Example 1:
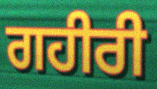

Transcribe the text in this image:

ਗਹੀਰੀ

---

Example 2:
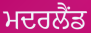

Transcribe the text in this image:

ਮਦਰਲੈਂਡ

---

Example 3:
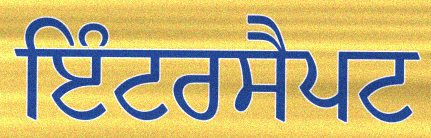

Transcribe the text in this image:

ਇੰਟਰਸੈਪਟ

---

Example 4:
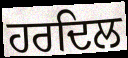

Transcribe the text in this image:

ਹਰਦਿਲ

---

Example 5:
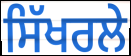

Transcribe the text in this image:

ਸਿੱਖਰਲੇ